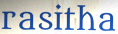
rasitha